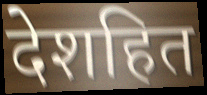
देशहित